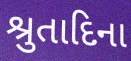
શ્રુતાદિના